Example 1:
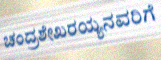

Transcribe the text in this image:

ಚಂದ್ರಶೇಖರಯ್ಯನವರಿಗೆ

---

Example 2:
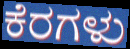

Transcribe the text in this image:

ಕೆರಗಳು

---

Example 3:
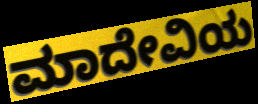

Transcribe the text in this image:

ಮಾದೇವಿಯ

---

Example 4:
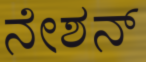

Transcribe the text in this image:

ನೇಶನ್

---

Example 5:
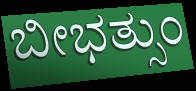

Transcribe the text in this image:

ಬೀಭತ್ಸುಂ